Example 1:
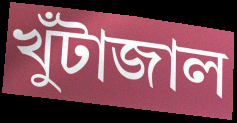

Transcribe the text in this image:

খুঁটাজাল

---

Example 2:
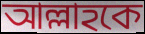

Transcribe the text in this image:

আল্লাহকে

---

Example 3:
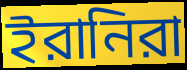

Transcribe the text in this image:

ইরানিরা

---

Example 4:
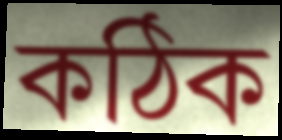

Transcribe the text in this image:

কঠিক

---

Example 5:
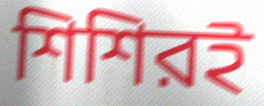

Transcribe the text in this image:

শিশিরই